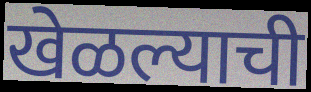
खेळल्याची